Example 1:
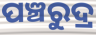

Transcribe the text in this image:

ପଞ୍ଚରୁଦ୍ର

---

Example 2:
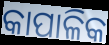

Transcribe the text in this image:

କାପାଳିକ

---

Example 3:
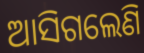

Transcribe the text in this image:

ଆସିଗଲେଣି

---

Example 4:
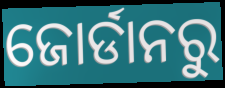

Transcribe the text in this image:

ଜୋର୍ଡାନରୁ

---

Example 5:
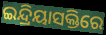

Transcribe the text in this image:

ଇନ୍ଦ୍ରିୟାସକ୍ତିରେ